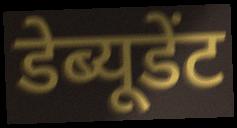
डेब्यूडेंट